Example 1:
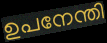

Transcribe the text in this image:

ഉപനേന്തി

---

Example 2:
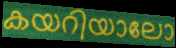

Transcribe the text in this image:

കയറിയാലോ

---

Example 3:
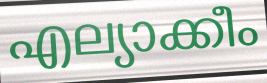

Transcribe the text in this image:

എല്യാക്കീം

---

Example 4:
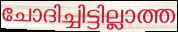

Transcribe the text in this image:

ചോദിച്ചിട്ടില്ലാത്ത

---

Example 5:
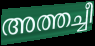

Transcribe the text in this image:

അത്തച്ചീ